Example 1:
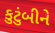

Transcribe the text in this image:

કુટુંબીને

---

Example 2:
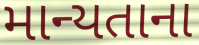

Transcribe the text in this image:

માન્યતાના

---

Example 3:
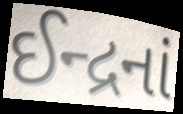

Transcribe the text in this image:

ઈન્દ્રનાં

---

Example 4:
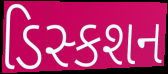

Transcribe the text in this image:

ડિસ્કશન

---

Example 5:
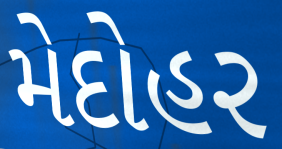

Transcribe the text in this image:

મેદોહર